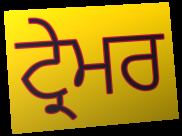
ਟ੍ਰੇਮਰ